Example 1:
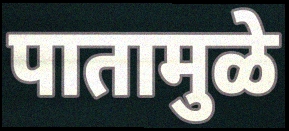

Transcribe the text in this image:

पातामुळे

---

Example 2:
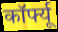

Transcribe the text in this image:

कॉर्फ्यू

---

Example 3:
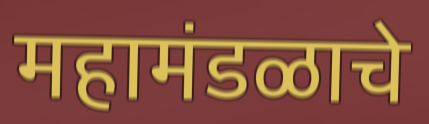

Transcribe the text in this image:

महामंडळाचे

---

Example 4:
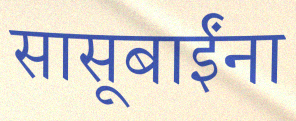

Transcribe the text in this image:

सासूबाईंना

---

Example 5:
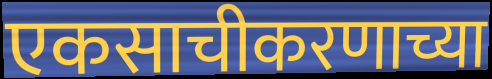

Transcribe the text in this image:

एकसाचीकरणाच्या